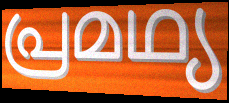
പ്രമഥ്യ